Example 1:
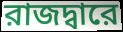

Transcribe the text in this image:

রাজদ্বারে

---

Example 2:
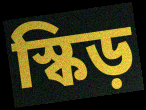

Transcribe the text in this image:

স্কিড়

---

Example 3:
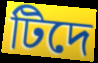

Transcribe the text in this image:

টিদে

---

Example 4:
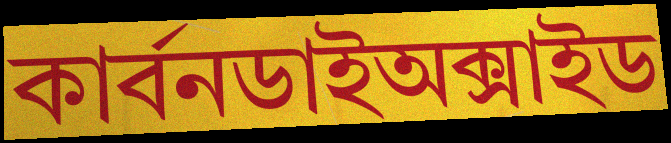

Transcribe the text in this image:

কার্বনডাইঅক্সাইড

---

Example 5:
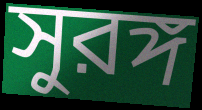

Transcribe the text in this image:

সুরঙ্গ